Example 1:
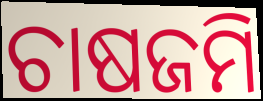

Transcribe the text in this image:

ଚାଷଜମି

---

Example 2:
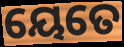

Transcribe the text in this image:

ୟେତେ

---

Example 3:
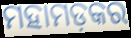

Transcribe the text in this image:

ମହାମଡ଼କର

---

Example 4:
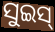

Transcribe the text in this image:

ସୁଇସ୍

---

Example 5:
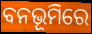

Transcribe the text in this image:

ବନଭୂମିରେ